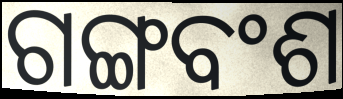
ଗଙ୍ଗବଂଶ